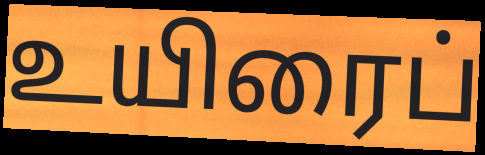
உயிரைப்